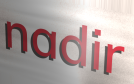
nadir